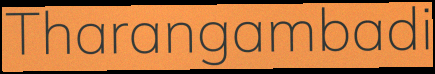
Tharangambadi